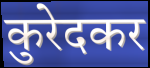
कुरेदकर